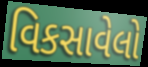
વિકસાવેલો